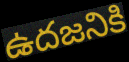
ఉదజనికి